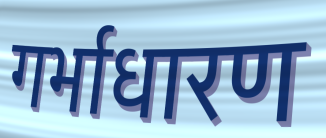
गर्भाधारण